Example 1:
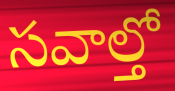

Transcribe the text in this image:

సవాల్తో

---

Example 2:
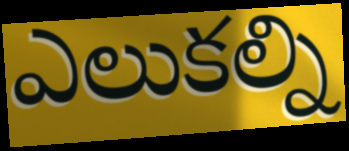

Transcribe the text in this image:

ఎలుకల్ని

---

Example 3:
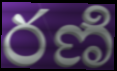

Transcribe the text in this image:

రణి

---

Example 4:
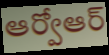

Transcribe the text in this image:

ఆర్వోఆర్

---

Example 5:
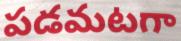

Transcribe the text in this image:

పడమటగా